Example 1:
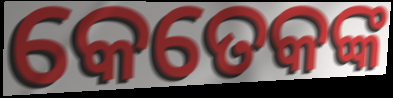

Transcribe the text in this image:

କେତେକଙ୍କ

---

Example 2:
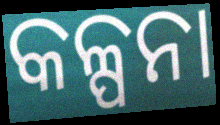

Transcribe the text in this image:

କଳ୍ପନା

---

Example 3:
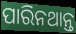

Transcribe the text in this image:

ପାରିନଥାନ୍ତ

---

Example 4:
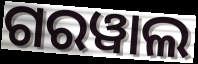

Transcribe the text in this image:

ଗରୱାଲ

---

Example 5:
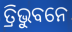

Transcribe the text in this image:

ତ୍ରିଭୁବନେ